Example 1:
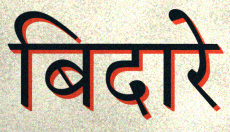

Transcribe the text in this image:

बिदारे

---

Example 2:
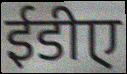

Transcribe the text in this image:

ईडीए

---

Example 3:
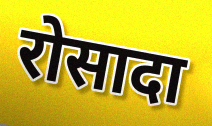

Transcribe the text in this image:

रोसादा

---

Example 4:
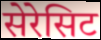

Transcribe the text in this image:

सेरेसिट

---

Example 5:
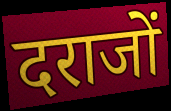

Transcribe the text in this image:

दराजों